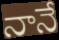
నానే